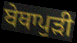
ਬੇਥਾਪੁੜੀ